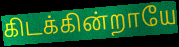
கிடக்கின்றாயே